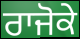
ਰਾਜੋਕੇ